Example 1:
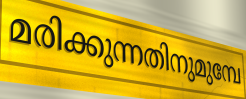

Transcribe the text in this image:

മരിക്കുന്നതിനുമുമ്പേ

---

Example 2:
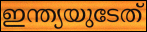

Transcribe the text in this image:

ഇന്ത്യയുടേത്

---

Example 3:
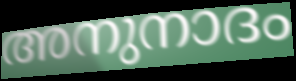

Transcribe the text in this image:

അനുനാദം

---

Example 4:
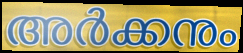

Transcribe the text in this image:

അർക്കനും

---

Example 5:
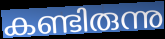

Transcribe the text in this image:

കണ്ടിരുന്നു